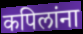
कपिलांना